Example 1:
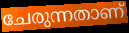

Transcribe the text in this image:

ചേരുന്നതാണ്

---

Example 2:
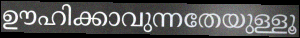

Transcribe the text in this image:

ഊഹിക്കാവുന്നതേയുള്ളൂ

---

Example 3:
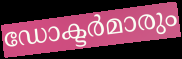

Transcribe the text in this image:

ഡോക്ടർമാരും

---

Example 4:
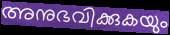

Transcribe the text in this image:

അനുഭവിക്കുകയും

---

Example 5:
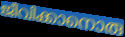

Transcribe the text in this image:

ജീവിക്കാനൊരു